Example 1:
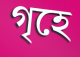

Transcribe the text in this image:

গৃহে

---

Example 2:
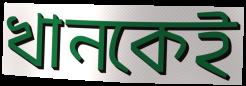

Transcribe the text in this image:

খানকেই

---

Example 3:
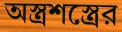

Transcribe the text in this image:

অস্ত্রশস্ত্রের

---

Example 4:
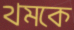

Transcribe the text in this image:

থমকে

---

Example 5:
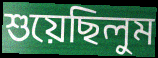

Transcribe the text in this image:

শুয়েছিলুম